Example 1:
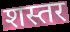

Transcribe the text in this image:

शस्तर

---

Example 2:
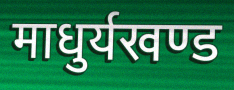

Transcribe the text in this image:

माधुर्यखण्ड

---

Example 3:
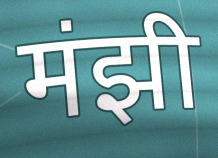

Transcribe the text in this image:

मंझी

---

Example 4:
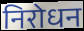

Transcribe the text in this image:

निरोधन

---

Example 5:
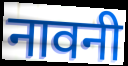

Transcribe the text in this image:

नावनी